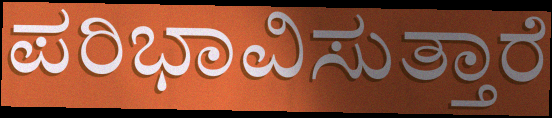
ಪರಿಭಾವಿಸುತ್ತಾರೆ